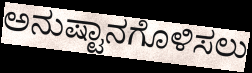
ಅನುಷ್ಟಾನಗೊಳಿಸಲು